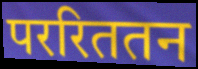
पररिततन